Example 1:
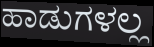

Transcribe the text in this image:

ಹಾಡುಗಳಲ್ಲ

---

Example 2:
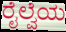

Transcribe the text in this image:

ರೈಲ್ವೆಯ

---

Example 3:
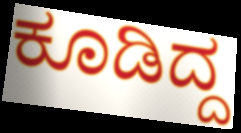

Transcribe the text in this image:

ಕೂಡಿದ್ದ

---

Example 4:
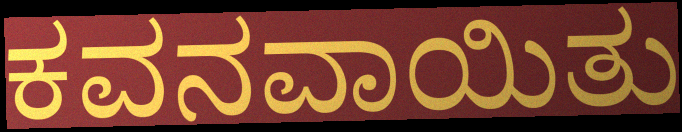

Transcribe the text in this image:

ಕವನವಾಯಿತು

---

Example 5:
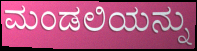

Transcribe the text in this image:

ಮಂಡಲಿಯನ್ನು